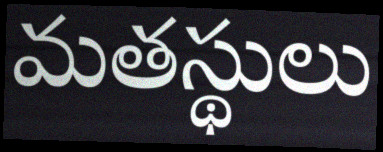
మతస్థులు